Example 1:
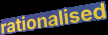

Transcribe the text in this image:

rationalised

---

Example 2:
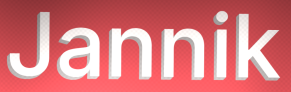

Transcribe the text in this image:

Jannik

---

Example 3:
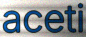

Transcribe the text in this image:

aceti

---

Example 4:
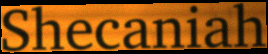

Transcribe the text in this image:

Shecaniah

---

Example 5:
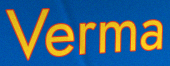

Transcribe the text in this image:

Verma